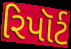
રિપૉર્ટ